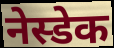
नेस्डेक